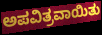
ಅಪವಿತ್ರವಾಯಿತು